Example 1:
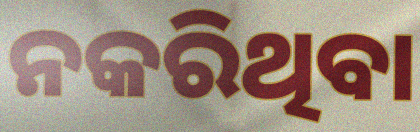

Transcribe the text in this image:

ନକରିଥିବା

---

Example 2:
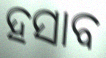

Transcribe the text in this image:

ହସାବ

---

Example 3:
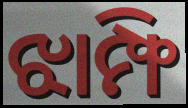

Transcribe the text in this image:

ଝାମ୍ଫି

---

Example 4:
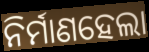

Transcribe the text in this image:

ନିର୍ମାଣହେଲା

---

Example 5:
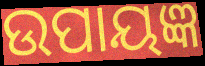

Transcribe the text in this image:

ଉପାୟଜ୍ଞ